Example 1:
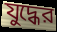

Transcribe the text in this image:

যুদ্ধের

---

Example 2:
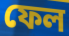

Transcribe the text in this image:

ফেল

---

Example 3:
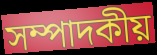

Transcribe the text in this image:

সম্পাদকীয়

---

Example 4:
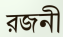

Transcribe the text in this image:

রজনী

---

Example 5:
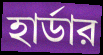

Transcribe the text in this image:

হার্ডার